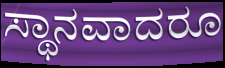
ಸ್ಥಾನವಾದರೂ